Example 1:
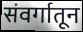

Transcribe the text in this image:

संवर्गातून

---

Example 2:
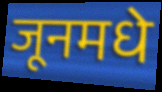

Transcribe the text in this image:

जूनमधे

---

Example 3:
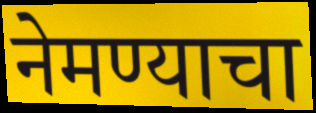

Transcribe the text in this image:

नेमण्याचा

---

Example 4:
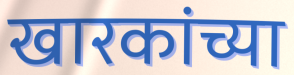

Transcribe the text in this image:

खारकांच्या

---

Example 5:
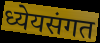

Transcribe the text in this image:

ध्येयसंगत